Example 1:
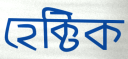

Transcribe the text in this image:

হেক্টিক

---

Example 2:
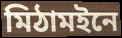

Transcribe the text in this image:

মিঠামইনে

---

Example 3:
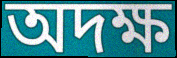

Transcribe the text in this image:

অদক্ষ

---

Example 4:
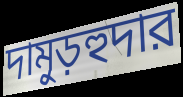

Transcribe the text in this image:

দামুড়হুদার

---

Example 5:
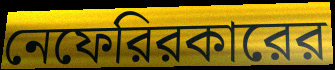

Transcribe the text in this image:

নেফেরিরকারের